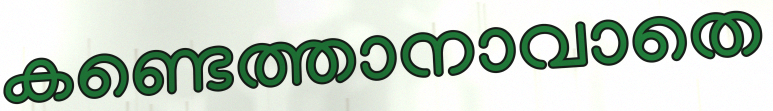
കണ്ടെത്താനാവാതെ